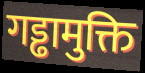
गड्ढामुक्ति